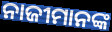
ନାଜୀମାନଙ୍କ